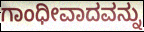
ಗಾಂಧೀವಾದವನ್ನು